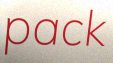
pack